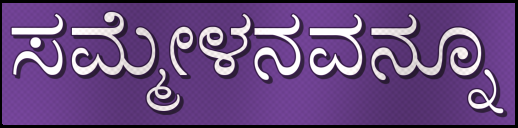
ಸಮ್ಮೇಳನವನ್ನೂ